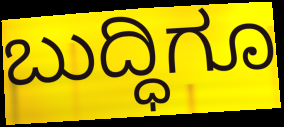
ಬುದ್ಧಿಗೂ